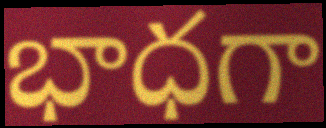
భాధగా